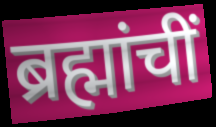
ब्रह्मांचीं